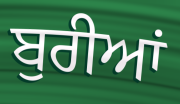
ਬੁਰੀਆਂ